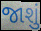
જાશું